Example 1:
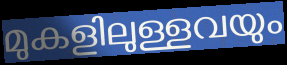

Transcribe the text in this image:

മുകളിലുള്ളവയും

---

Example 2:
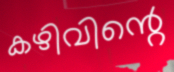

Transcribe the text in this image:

കഴിവിന്റെ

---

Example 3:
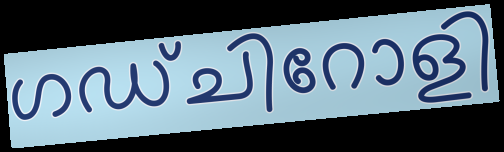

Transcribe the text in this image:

ഗഡ്ചിറോളി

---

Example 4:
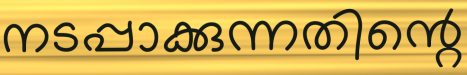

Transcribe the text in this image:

നടപ്പാക്കുന്നതിന്റെ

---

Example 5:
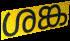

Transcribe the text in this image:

ശങ്ക